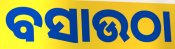
ବସାଉଠା